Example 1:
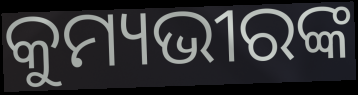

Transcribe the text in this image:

କୁମ୍ୟଭୀରଙ୍କ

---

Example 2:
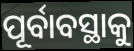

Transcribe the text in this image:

ପୂର୍ବାବସ୍ଥାକୁ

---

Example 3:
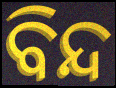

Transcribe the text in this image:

ବିନ୍ଦ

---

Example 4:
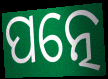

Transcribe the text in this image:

ପତ୍ନେ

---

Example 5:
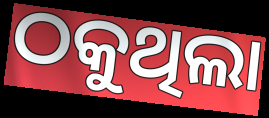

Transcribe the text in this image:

ଠକୁଥିଲା